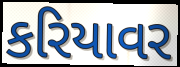
કરિયાવર